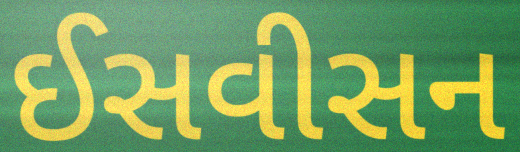
ઈસવીસન